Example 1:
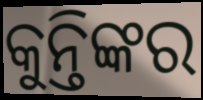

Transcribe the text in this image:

କୁନ୍ତିଙ୍କର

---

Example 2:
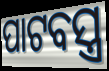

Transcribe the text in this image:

ପାଟବସ୍ତ୍ର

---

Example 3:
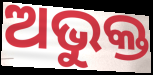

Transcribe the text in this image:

ଅଭୁକ୍ତ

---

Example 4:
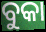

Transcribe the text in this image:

ବୁକା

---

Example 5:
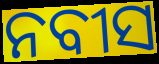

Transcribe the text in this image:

ନବୀସ